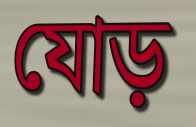
যোড়